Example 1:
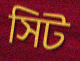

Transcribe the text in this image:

সিট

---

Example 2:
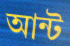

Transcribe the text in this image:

আন্ট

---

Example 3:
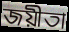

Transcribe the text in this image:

জয়ীতা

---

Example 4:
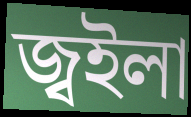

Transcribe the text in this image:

জ্বইলা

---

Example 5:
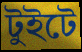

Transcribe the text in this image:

টুইটে